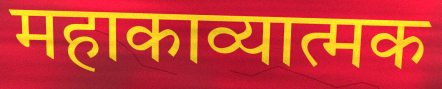
महाकाव्यात्मक